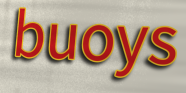
buoys